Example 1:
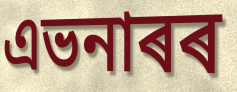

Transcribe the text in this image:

এভনাৰৰ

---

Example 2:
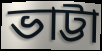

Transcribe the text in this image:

ভাট্টা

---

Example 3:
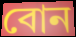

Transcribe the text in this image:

বোন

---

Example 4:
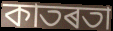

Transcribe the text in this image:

কাতৰতা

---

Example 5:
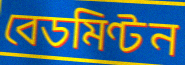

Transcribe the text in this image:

বেডমিণ্টন